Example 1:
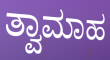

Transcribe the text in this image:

ತ್ವಾಮಾಹ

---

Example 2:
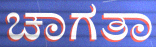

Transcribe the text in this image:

ಚಾಗತಾ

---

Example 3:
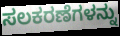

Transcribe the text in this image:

ಸಲಕರಣೆಗಳನ್ನು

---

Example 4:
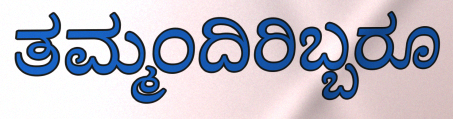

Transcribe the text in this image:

ತಮ್ಮಂದಿರಿಬ್ಬರೂ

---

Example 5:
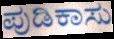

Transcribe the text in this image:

ಪುಡಿಕಾಸು